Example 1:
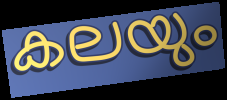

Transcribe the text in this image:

കലയും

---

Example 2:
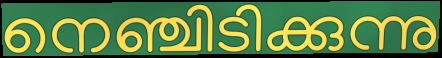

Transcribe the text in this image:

നെഞ്ചിടിക്കുന്നു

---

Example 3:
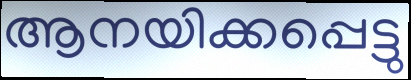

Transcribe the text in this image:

ആനയിക്കപ്പെട്ടു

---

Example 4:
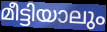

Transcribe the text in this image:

മീട്ടിയാലും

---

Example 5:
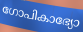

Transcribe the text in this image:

ഗോപികാഭ്യോ